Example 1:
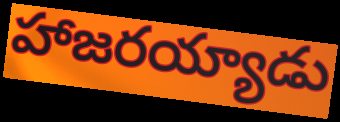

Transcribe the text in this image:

హాజరయ్యాడు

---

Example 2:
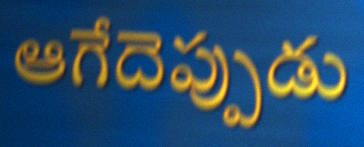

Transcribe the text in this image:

ఆగేదెప్పుడు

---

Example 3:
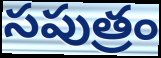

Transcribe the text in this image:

సపుత్రం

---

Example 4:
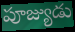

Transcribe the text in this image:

పూజ్యుడు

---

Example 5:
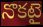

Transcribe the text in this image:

నొకటై